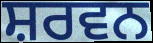
ਸ਼ਰਵਨ